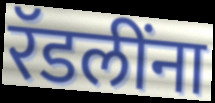
रॅडलींना